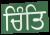
ਚਿੰਤਿ